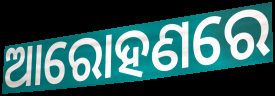
ଆରୋହଣରେ